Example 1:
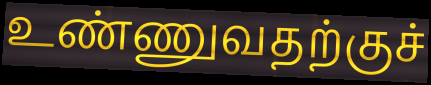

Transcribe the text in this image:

உண்ணுவதற்குச்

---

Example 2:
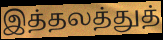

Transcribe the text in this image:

இத்தலத்துத்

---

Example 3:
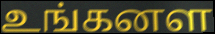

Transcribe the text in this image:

உங்கனள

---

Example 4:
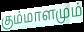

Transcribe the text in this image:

கும்மாளமும்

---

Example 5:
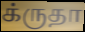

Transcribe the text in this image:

க்ருதா